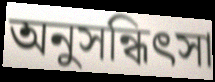
অনুসন্ধিৎসা